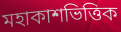
মহাকাশভিত্তিক